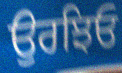
ਉਰਝਿਓ